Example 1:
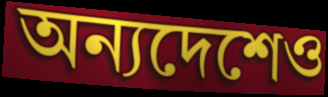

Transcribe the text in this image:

অন্যদেশেও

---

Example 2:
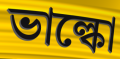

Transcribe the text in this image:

ভাল্কো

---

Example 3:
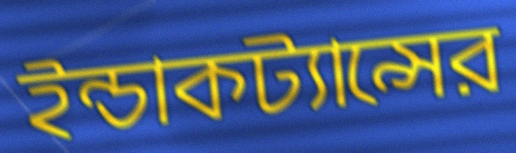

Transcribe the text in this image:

ইন্ডাকট্যান্সের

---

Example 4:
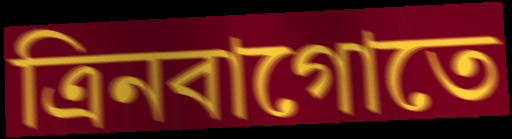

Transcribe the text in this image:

ত্রিনবাগোতে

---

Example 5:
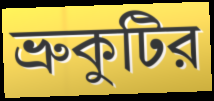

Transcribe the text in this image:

ভ্রুকুটির